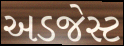
અડજેસ્ટ